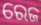
ରେଜ